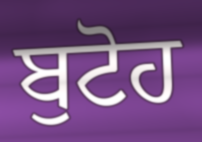
ਬੁਟੋਹ